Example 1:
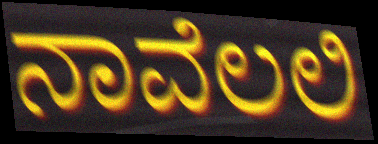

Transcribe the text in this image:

ನಾವೆಲಲಿ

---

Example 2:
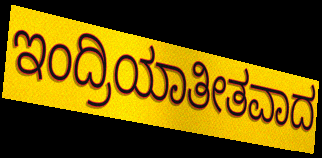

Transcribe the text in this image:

ಇಂದ್ರಿಯಾತೀತವಾದ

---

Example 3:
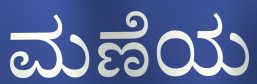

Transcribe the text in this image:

ಮಣೆಯ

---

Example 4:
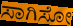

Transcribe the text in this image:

ಸಾಗಿಸೋ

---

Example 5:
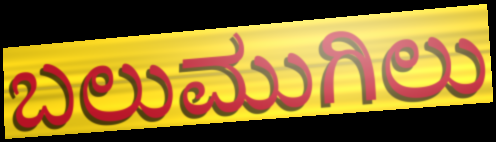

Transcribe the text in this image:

ಬಲುಮುಗಿಲು